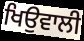
ਖਿਉਵਾਲੀ